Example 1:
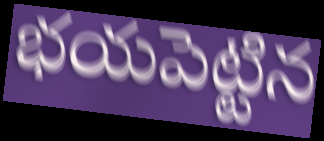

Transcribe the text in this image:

భయపెట్టిన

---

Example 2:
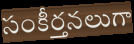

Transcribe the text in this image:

సంకీర్తనలుగా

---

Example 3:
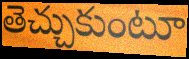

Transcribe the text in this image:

తెచ్చుకుంటూ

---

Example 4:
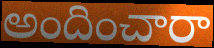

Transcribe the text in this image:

అందించారా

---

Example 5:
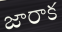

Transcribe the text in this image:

జారాక